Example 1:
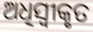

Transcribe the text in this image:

ଅଧିସ୍ୱୀକୃତ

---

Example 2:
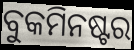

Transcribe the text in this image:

ବୁକମିନଷ୍ଟର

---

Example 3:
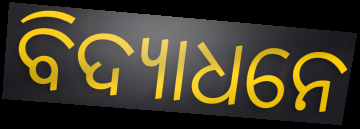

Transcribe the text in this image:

ବିଦ୍ୟାଧନେ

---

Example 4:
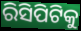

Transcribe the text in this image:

ରିସିପିଟିକୁ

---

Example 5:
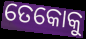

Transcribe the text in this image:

ତେକୋକୁ